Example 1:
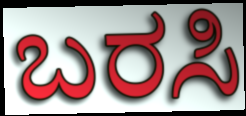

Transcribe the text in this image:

ಬರಸಿ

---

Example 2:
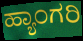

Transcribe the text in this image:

ಹ್ಯಾಂಗರಿ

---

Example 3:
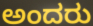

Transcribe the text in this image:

ಅಂದರು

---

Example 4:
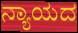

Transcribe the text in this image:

ನ್ಯಾಯದ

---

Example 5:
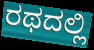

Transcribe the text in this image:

ರಥದಲ್ಲಿ